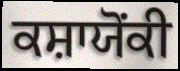
ਕਸ਼ਾਯੋਂਕੀ